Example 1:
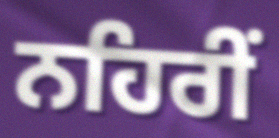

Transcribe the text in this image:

ਨਹਿਰੀਂ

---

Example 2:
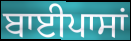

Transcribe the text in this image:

ਬਾਈਪਾਸਾਂ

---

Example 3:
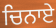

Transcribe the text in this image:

ਚਿਨਾਏ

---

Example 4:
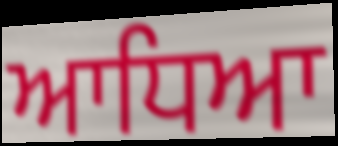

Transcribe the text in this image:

ਆਧਿਆ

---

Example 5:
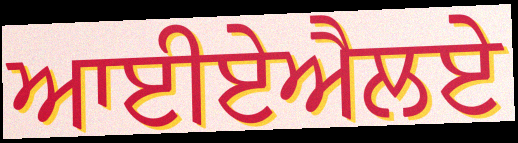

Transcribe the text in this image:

ਆਈਏਐਲਏ